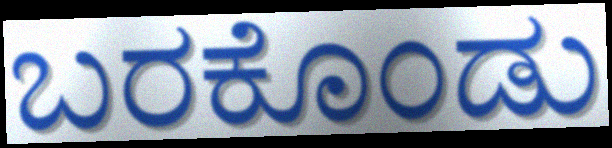
ಬರಕೊಂಡು